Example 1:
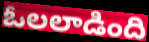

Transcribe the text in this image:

ఓలలాడింది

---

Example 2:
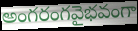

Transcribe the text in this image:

అంగరంగవైభవంగా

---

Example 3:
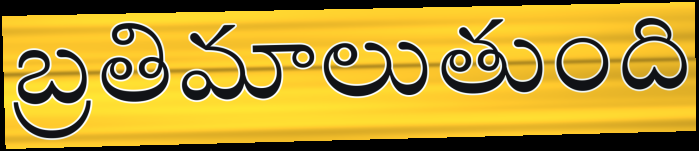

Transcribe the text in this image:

బ్రతిమాలుతుంది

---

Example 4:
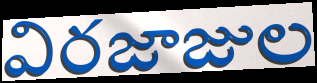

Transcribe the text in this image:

విరజాజుల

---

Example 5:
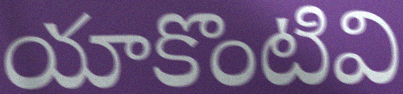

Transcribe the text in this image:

యాకొంటివి